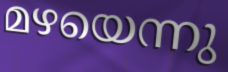
മഴയെന്നു